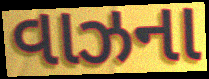
વાઝના